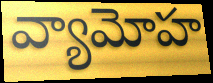
వ్యామోహ